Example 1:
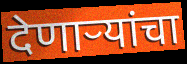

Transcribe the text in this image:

देणाऱ्यांचा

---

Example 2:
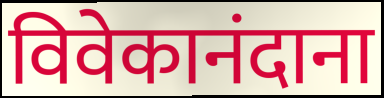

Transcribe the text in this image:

विवेकानंदाना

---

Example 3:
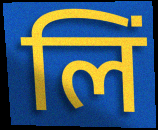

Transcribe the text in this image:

लिं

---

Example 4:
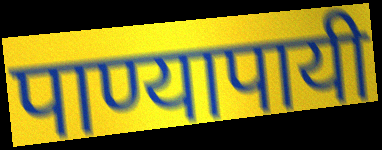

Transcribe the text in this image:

पाण्यापायी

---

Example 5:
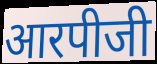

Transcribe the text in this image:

आरपीजी